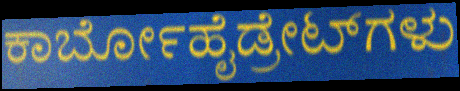
ಕಾರ್ಬೋಹೈಡ್ರೇಟ್‌ಗಳು